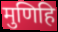
मुणिहि